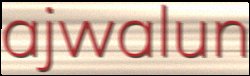
ajwalun